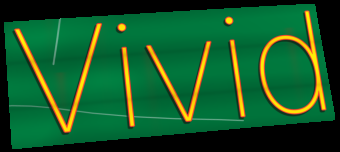
Vivid